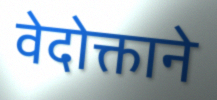
वेदोक्ताने